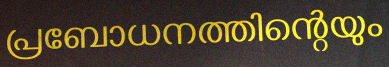
പ്രബോധനത്തിന്റെയും